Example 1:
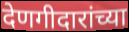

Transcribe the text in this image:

देणगीदारांच्या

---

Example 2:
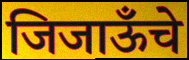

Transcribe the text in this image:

जिजाऊँचे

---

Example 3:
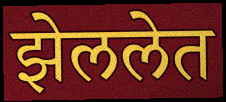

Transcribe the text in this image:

झेललेत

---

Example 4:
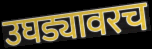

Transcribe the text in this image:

उघड्यावरच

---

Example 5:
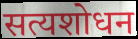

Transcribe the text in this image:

सत्यशोधन